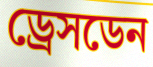
ড্রেসডেন